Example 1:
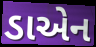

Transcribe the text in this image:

ડાએન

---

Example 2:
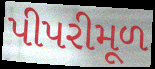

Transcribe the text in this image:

પીપરીમૂળ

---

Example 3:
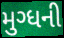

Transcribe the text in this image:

મુગ્ધની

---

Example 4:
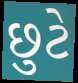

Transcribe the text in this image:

છુટે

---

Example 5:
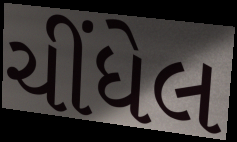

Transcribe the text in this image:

ચીંધેલ